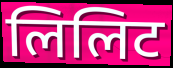
लिलिट